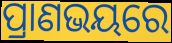
ପ୍ରାଣଭୟରେ